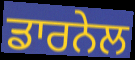
ਡਾਰਨੇਲ